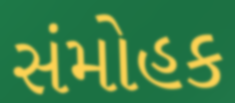
સંમોહક